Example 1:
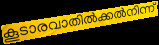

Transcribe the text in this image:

കൂടാരവാതിൽക്കൽനിന്ന്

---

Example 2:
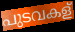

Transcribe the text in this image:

പുടവകള്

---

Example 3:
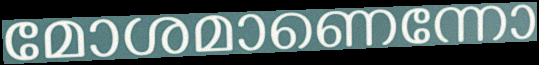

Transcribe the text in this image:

മോശമാണെന്നോ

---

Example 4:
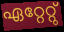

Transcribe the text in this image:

ഏറ്റേറ്റു്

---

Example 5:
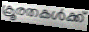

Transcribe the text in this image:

ക്രൂരതകൾക്ക്